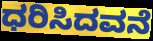
ಧರಿಸಿದವನೆ